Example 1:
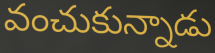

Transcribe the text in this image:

వంచుకున్నాడు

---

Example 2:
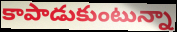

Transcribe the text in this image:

కాపాడుకుంటున్నా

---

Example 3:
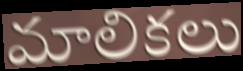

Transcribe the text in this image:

మాలికలు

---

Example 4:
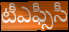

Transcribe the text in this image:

టీఎఫ్సీసీ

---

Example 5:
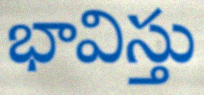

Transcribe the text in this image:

భావిస్తు